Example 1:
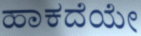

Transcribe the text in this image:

ಹಾಕದೆಯೇ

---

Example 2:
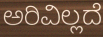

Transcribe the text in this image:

ಅರಿವಿಲ್ಲದೆ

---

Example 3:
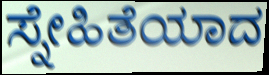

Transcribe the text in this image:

ಸ್ನೇಹಿತೆಯಾದ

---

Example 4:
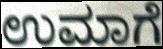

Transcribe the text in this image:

ಉಮಾಗೆ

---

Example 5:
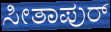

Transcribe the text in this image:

ಸೀತಾಪುರ್